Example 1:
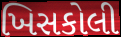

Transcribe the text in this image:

ખિસકોલી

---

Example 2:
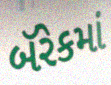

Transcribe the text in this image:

બૅરેકમાં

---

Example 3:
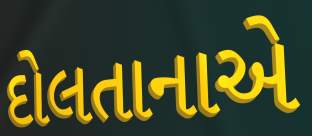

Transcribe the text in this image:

દોલતાનાએ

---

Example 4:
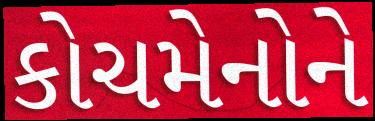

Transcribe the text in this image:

કોચમેનોને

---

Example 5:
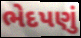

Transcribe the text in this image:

ભેદપણું